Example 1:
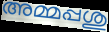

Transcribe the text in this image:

അമ്മപ്പശു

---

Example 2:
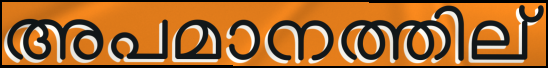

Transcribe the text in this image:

അപമാനത്തില്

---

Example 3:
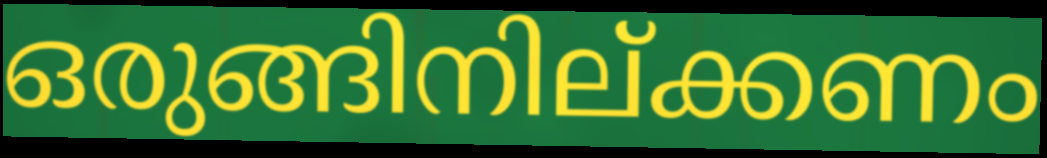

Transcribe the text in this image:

ഒരുങ്ങിനില്ക്കണം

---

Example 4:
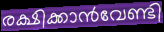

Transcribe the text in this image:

രക്ഷിക്കാൻവേണ്ടി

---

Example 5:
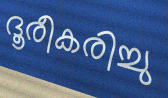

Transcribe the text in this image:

ദൂരീകരിച്ചു